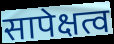
सापेक्षत्व